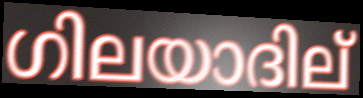
ഗിലയാദില്